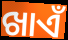
ଖାଏଁ